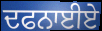
ਦਫਨਾਈਏ